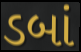
ડબાં